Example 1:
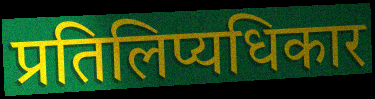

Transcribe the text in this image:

प्रतिलिप्यधिकार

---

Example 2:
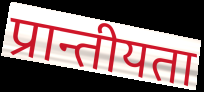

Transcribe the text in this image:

प्रान्तीयता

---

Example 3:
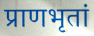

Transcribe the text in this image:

प्राणभृतां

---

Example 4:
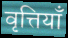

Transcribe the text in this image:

वृत्तियाँ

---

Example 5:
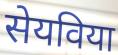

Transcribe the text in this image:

सेयविया